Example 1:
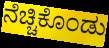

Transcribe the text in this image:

ನೆಚ್ಚಿಕೊಂಡು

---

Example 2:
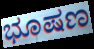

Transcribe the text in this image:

ಭೂಷಣ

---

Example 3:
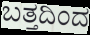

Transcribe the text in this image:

ಬತ್ತದಿಂದ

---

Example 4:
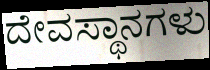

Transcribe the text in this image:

ದೇವಸ್ಥಾನಗಳು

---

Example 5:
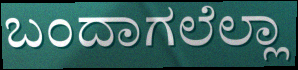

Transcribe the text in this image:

ಬಂದಾಗಲೆಲ್ಲಾ